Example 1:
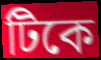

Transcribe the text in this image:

টিকে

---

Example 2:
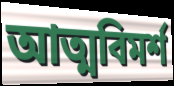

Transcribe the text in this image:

আত্মবিমর্শ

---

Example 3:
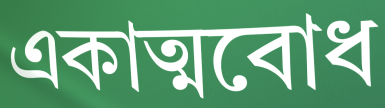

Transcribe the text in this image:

একাত্মবোধ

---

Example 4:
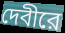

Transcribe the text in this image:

দেবীরে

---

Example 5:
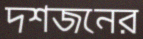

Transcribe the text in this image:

দশজনের